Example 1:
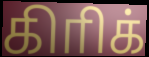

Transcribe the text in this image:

கிரிக்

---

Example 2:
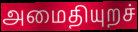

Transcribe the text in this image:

அமைதியுறச்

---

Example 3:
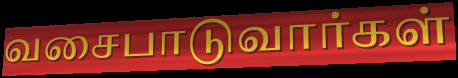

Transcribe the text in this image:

வசைபாடுவார்கள்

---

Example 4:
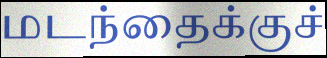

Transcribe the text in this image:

மடந்தைக்குச்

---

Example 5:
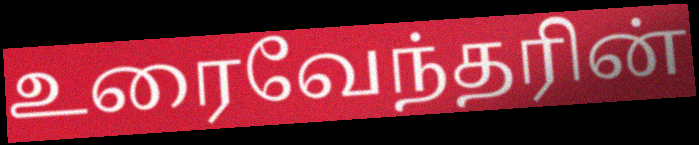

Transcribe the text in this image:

உரைவேந்தரின்